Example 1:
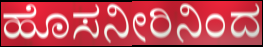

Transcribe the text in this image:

ಹೊಸನೀರಿನಿಂದ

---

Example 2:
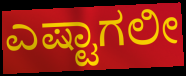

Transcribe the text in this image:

ಎಷ್ಟಾಗಲೀ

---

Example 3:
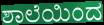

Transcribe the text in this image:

ಶಾಲೆಯಿಂದ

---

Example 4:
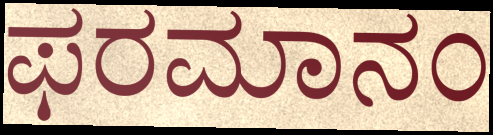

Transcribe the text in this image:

ಫರಮಾನಂ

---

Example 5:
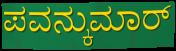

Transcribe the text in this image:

ಪವನ್ಕುಮಾರ್